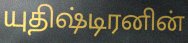
யுதிஷ்டிரனின்